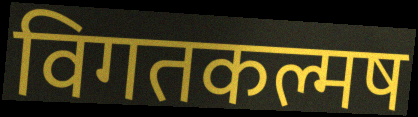
विगतकल्मष